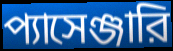
প্যাসেঞ্জারি